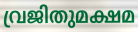
വ്രജിതുമക്ഷമ